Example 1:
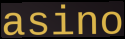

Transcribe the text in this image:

asino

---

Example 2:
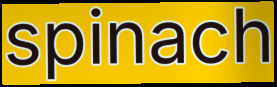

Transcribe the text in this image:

spinach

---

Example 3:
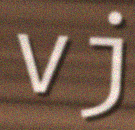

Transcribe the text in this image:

vj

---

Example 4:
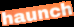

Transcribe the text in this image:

haunch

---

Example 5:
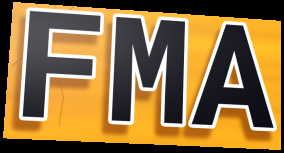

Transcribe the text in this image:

FMA